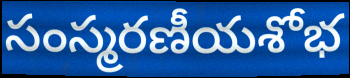
సంస్మరణీయశోభ